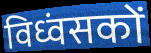
विध्वंसकों